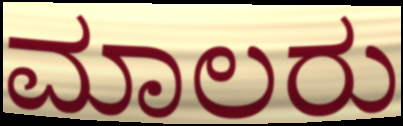
ಮಾಲರು